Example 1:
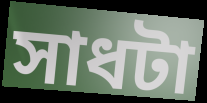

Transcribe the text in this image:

সাধটা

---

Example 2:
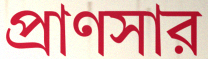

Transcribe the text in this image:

প্রাণসার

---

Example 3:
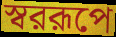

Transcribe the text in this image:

স্বররূপে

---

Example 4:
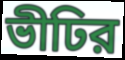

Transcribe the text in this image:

ভীঢির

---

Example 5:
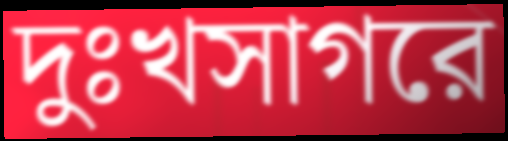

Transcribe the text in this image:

দুঃখসাগরে